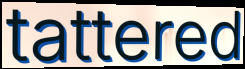
tattered